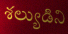
శల్యుడిని